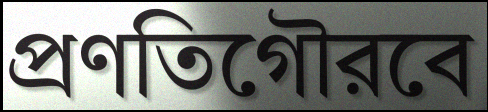
প্রণতিগৌরবে